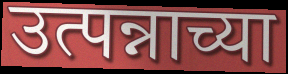
उत्पन्नाच्या